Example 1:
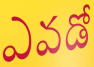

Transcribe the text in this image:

ఎవడో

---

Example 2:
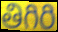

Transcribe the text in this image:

తిగిరి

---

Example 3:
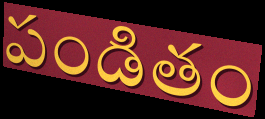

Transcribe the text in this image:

పండితం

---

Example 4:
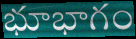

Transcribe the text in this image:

భూభాగం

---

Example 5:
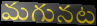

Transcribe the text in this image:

మగునట